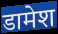
डामेश